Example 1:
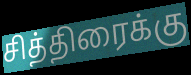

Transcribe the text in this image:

சித்திரைக்கு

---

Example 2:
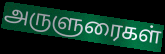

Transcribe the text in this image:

அருளுரைகள்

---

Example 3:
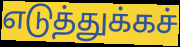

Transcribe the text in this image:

எடுத்துக்கச்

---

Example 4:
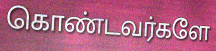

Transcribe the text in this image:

கொண்டவர்களே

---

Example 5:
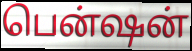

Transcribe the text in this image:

பென்ஷன்